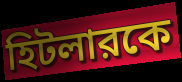
হিটলারকে